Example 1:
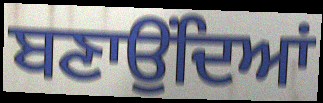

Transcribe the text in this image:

ਬਣਾਉਂਦਿਆਂ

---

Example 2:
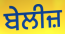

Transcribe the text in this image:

ਬੇਲੀਜ਼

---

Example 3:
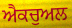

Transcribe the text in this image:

ਐਕਚੁਅਲ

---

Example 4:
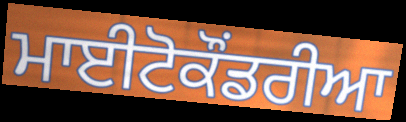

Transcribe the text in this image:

ਮਾਈਟੋਕੌਂਡਰੀਆ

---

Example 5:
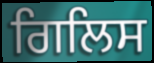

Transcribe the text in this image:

ਗਿਲਿਸ